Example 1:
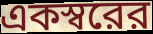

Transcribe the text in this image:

একস্বরের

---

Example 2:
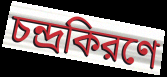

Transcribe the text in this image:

চন্দ্রকিরণে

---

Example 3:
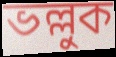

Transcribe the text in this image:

ভল্লুক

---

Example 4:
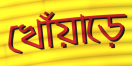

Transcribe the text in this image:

খোঁয়াড়ে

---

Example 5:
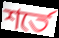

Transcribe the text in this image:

শর্তে